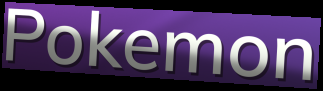
Pokemon